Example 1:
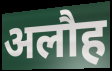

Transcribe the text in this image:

अलौह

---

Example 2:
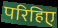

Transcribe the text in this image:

परिहिए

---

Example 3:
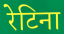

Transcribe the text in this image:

रेटिना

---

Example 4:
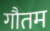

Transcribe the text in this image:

गौतम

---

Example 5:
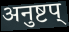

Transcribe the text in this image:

अनुष्टप्